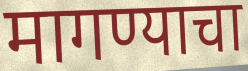
मागण्याचा